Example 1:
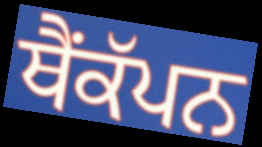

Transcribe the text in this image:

ਥੈਂਕੱਪਨ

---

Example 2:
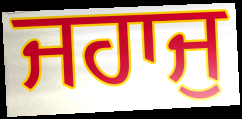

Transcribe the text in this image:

ਜਹਾਜੁ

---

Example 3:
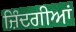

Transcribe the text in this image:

ਜ਼ਿੰਦਗੀਆਂ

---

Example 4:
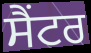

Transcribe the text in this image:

ਸੈਂਟਰ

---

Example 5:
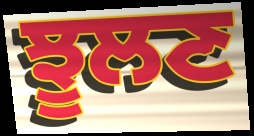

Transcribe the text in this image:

ਝੂਲਣ